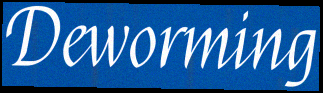
Deworming